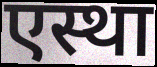
एस्था